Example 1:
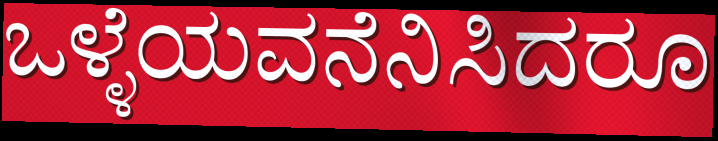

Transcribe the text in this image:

ಒಳ್ಳೆಯವನೆನಿಸಿದರೂ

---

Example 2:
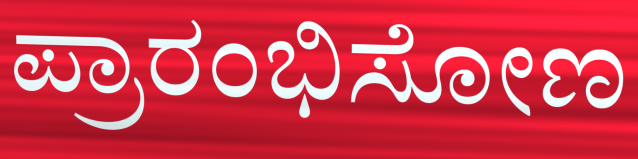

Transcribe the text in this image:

ಪ್ರಾರಂಭಿಸೋಣ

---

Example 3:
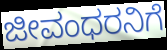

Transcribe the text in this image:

ಜೀವಂಧರನಿಗೆ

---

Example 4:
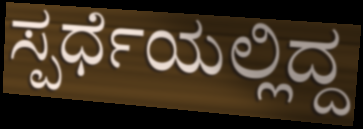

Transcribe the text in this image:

ಸ್ಪರ್ಧೆಯಲ್ಲಿದ್ದ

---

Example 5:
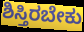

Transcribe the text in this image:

ಶಿಸ್ತಿರಬೇಕು